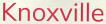
Knoxville